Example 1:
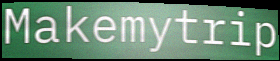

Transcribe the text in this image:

Makemytrip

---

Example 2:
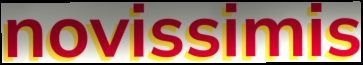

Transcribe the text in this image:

novissimis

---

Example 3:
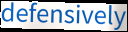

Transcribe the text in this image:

defensively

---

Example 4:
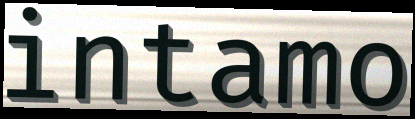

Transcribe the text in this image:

intamo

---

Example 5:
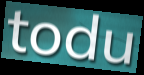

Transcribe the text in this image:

todu